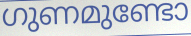
ഗുണമുണ്ടോ